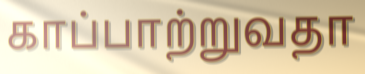
காப்பாற்றுவதா